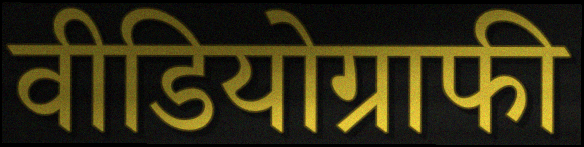
वीडियोग्राफी